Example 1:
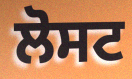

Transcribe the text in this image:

ਲੋਸਟ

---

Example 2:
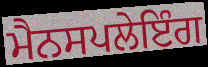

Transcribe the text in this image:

ਮੈਨਸਪਲੇਇੰਗ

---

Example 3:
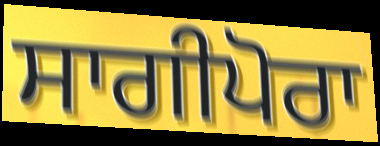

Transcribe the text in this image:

ਸਾਗੀਪੋਰਾ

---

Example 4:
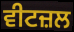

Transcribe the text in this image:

ਵੀਟਜ਼ਲ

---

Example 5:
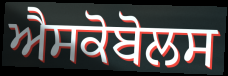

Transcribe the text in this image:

ਐਸਕੋਬੋਲਸ